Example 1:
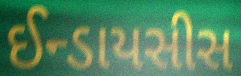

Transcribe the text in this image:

ઈન્ડાયસીસ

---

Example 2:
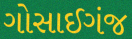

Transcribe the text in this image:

ગોસાઈગંજ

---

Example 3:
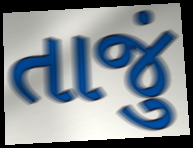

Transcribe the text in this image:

તાજું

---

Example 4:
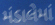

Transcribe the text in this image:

મંડાલેમાં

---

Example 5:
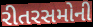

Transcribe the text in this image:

રીતરસમોની